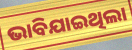
ଭାବିଯାଇଥିଲା